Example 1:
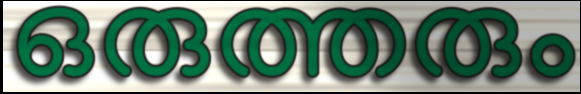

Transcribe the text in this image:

ഒരുത്തരും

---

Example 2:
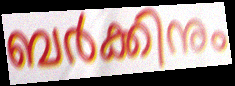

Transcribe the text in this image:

ബർക്കിനും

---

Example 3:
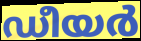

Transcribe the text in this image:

ഡീയർ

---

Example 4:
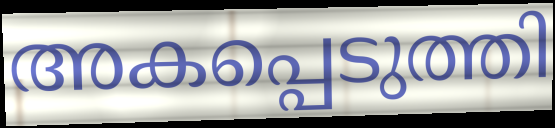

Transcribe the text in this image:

അകപ്പെടുത്തി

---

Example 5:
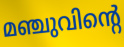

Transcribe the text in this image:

മഞ്ചുവിന്റെ